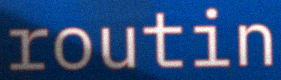
routin